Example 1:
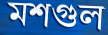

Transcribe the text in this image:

মশগুল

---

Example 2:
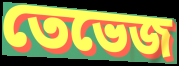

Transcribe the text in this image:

তেভেজ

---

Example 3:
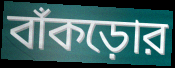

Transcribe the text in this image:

বাঁকড়োর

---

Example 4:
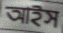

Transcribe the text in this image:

আইস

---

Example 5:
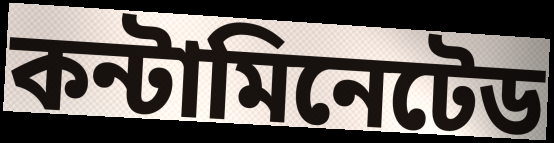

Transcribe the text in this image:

কন্টামিনেটেড